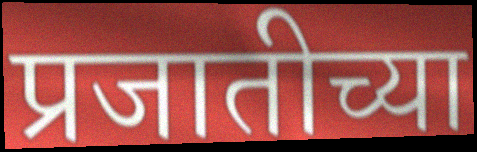
प्रजातीच्या